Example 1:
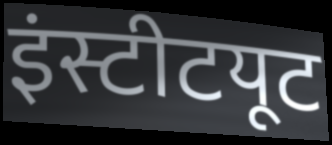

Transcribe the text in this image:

इंस्‍टीटयूट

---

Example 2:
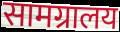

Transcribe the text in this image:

सामग्रालय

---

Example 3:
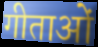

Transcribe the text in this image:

गीताओं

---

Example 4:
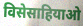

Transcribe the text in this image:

विसेसाहियाओ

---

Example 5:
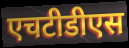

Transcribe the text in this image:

एचटीडीएस